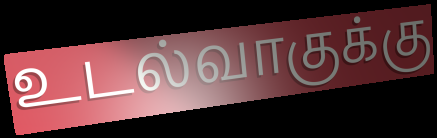
உடல்வாகுக்கு